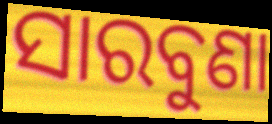
ସାରବୁଣା